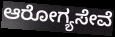
ಆರೋಗ್ಯಸೇವೆ